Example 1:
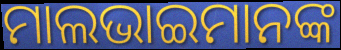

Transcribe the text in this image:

ମାଲଭାଇମାନଙ୍କ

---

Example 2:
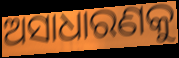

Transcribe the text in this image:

ଅସାଧାରଣକୁ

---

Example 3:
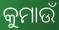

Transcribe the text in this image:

କୁମାଉଁ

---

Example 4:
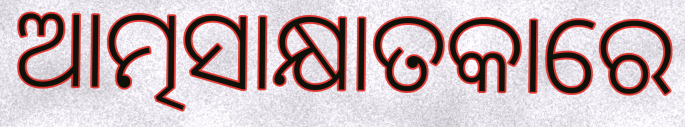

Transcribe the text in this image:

ଆତ୍ମସାକ୍ଷାତକାରେ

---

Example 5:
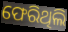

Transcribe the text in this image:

ଫେରିଥିଲି